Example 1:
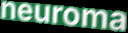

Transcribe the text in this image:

neuroma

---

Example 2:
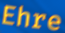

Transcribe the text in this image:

Ehre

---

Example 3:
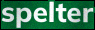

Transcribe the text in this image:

spelter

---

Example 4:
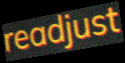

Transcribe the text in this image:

readjust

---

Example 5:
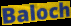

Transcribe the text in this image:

Baloch